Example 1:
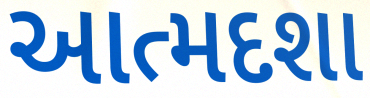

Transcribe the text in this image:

આત્મદશા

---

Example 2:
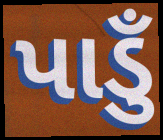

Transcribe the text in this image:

પાડુઁ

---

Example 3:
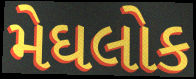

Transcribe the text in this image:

મેઘલોક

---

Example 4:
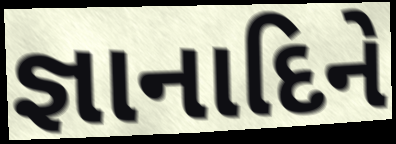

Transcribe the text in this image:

જ્ઞાનાદિને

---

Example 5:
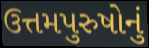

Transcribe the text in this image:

ઉત્તમપુરુષોનું